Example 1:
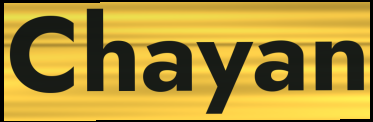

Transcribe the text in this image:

Chayan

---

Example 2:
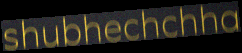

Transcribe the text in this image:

shubhechchha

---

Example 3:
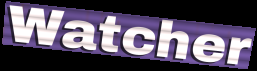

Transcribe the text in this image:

Watcher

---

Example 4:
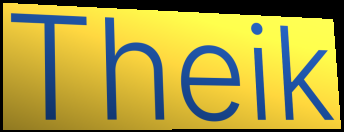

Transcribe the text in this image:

Theik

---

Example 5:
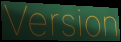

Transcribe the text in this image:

Version